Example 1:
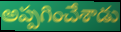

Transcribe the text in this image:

అప్పగించేశాడు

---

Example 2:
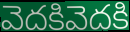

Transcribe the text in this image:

వెదకివెదకి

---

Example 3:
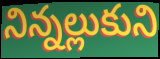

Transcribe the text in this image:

నిన్నల్లుకుని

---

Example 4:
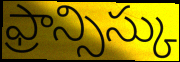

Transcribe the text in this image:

ఫ్రాన్సిస్కు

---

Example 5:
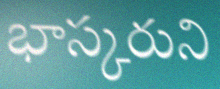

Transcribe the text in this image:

భాస్కరుని